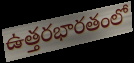
ఉత్తరభారతంలో